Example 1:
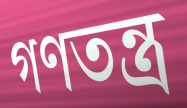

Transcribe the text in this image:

গণতন্ত্র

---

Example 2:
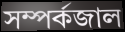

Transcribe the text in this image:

সম্পর্কজাল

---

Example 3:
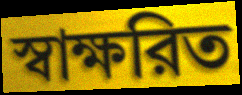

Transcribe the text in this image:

স্বাক্ষরিত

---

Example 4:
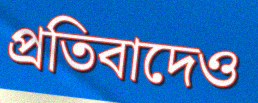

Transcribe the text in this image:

প্রতিবাদেও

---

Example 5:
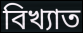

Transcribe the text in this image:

বিখ্যাত